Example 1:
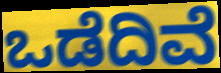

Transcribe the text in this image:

ಒಡೆದಿವೆ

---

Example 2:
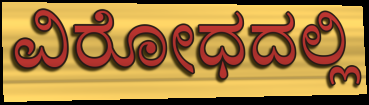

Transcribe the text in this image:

ವಿರೋಧದಲ್ಲಿ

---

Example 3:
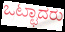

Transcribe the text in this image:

ಒಟ್ಟಾದರು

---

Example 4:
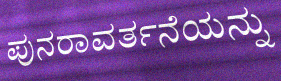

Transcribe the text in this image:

ಪುನರಾವರ್ತನೆಯನ್ನು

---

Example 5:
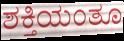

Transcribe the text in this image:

ಶಕ್ತಿಯಂತೂ